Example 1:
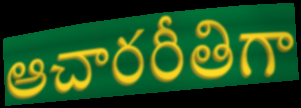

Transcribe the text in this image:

ఆచారరీతిగా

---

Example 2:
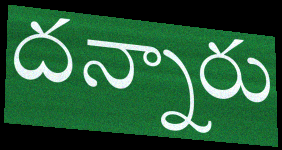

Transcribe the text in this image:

దన్నారు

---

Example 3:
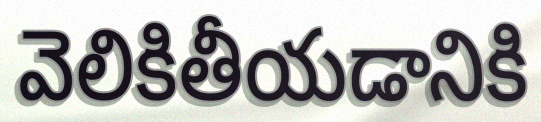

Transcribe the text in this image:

వెలికితీయడానికి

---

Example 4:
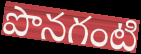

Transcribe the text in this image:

పొనగంటి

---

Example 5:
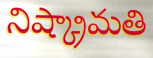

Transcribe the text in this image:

నిష్క్రామతి